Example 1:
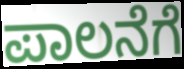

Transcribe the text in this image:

ಪಾಲನೆಗೆ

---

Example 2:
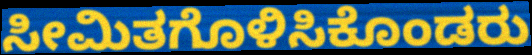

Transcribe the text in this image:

ಸೀಮಿತಗೊಳಿಸಿಕೊಂಡರು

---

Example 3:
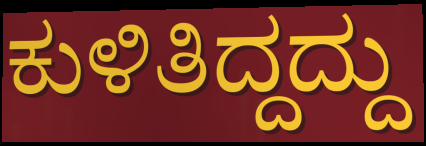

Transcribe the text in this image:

ಕುಳಿತಿದ್ದದ್ದು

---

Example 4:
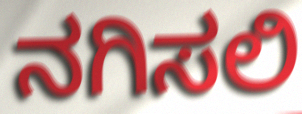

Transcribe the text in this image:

ನಗಿಸಲಿ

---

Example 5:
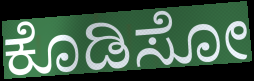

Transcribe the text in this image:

ಕೊಡಿಸೋ